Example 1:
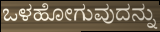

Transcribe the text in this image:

ಒಳಹೋಗುವುದನ್ನು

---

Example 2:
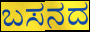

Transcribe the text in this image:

ಬಸನದ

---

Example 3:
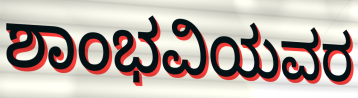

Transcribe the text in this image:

ಶಾಂಭವಿಯವರ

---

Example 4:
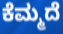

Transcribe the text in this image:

ಕೆಮ್ಮದೆ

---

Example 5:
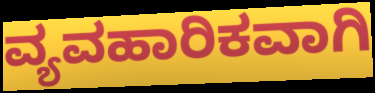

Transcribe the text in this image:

ವ್ಯವಹಾರಿಕವಾಗಿ